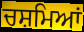
ਚਸ਼ਮਿਆਂ